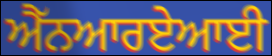
ਐੱਨਆਰਏਆਈ